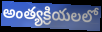
అంత్యక్రియలలో